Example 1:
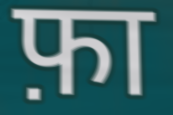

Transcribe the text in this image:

फ़ा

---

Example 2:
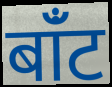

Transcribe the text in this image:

बांँट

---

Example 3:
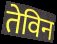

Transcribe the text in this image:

तेविन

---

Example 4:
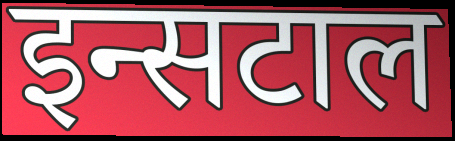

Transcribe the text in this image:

इन्सटाल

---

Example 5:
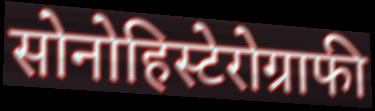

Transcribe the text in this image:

सोनोहिस्टेरोग्राफी